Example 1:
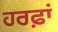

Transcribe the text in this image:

ਹਰਫ਼ਾਂ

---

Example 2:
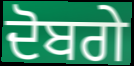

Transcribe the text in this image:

ਦੋਬਗੇ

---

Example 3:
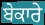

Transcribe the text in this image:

ਬੇਕਾਰੇ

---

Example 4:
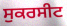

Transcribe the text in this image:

ਸੁਕਰਸੀਟ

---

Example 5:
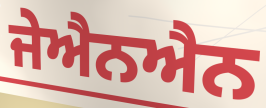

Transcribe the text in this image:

ਜੇਐਨਐਨ